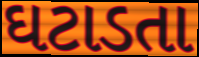
ઘટાડતા